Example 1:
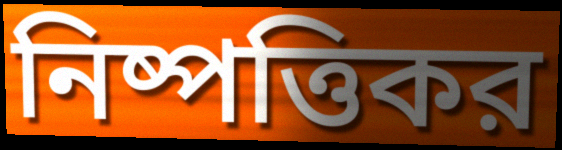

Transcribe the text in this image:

নিষ্পত্তিকর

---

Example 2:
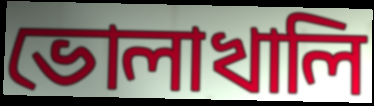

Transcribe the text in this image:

ভোলাখালি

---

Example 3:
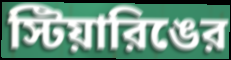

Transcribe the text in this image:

স্টিয়ারিঙের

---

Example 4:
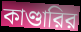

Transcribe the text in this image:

কাণ্ডারির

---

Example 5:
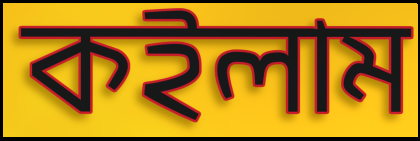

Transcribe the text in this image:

কইলাম